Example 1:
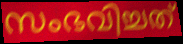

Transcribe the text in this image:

സംഭവിച്ചത്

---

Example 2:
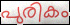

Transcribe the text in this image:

പുരികം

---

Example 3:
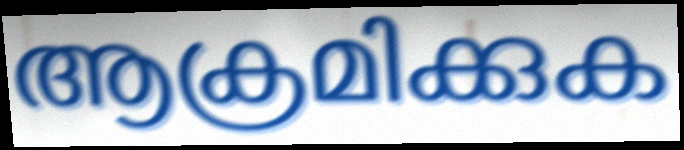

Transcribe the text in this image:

ആക്രമിക്കുക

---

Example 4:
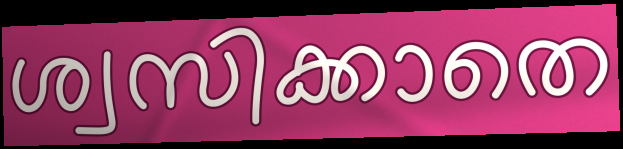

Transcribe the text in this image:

ശ്വസിക്കാതെ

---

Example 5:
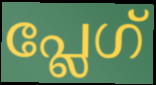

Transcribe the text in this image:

പ്ലേഗ്